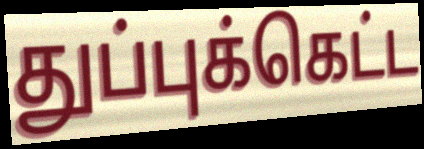
துப்புக்கெட்ட